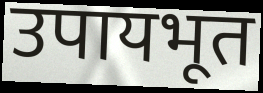
उपायभूत